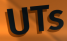
UTs